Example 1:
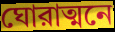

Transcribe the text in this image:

ঘোরাত্মনে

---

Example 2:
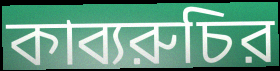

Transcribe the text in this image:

কাব্যরুচির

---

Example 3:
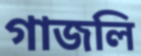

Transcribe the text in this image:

গাজলি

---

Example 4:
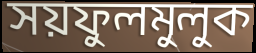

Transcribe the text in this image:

সয়ফুলমুলুক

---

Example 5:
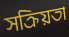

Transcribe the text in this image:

সক্রিয়তা